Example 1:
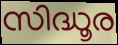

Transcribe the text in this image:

സിദ്ധൂര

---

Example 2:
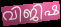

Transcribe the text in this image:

വിജിഷ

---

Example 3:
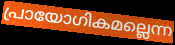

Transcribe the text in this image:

പ്രായോഗികമല്ലെന്ന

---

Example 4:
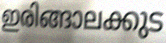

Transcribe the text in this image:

ഇരിങ്ങാലക്കുട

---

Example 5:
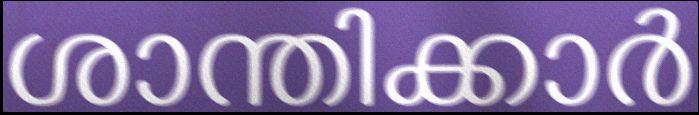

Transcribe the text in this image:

ശാന്തിക്കാർ